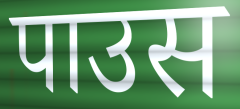
पाउस